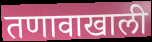
तणावाखाली